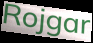
Rojgar